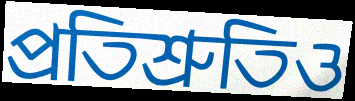
প্ৰতিশ্ৰুতিও